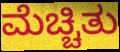
ಮೆಚ್ಚಿತು